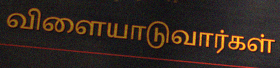
விளையாடுவார்கள்